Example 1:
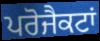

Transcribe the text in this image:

ਪਰੋਜੈਕਟਾਂ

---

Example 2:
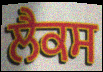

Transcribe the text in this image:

ਲੈਕਸ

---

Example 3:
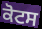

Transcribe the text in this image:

ਕੋਟਸ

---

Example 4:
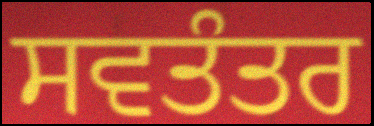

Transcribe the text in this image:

ਸਵਤੰਤਰ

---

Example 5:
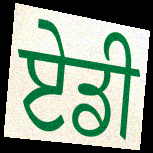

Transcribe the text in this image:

ਏਡੀ